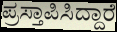
ಪ್ರಸ್ತಾಪಿಸಿದ್ದಾರೆ